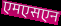
एमएसएन